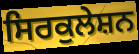
ਸਿਰਕੁਲੇਸ਼ਨ